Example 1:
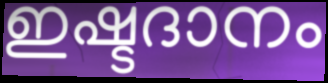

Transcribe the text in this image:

ഇഷ്ടദാനം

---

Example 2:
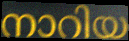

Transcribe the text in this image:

നാറിയ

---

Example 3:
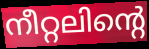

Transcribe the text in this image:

നീറ്റലിന്റെ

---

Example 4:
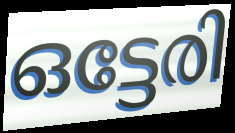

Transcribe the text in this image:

ഒട്ടേരി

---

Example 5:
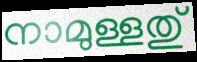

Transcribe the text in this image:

നാമുള്ളതു്